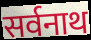
सर्वनाथ